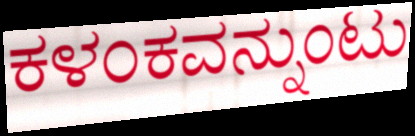
ಕಳಂಕವನ್ನುಂಟು